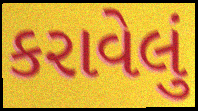
કરાવેલું